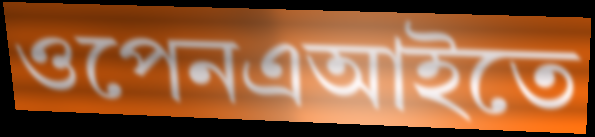
ওপেনএআইতে